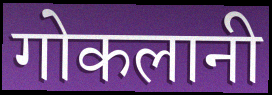
गोकलानी